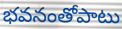
భవనంతోపాటు